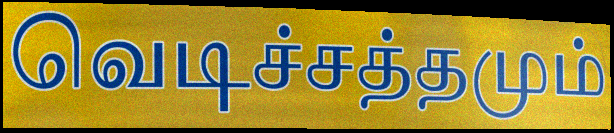
வெடிச்சத்தமும்